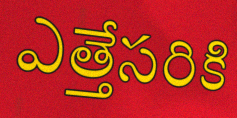
ఎత్తేసరికి